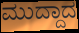
ಮುದ್ದಾದ